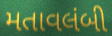
મતાવલંબી